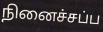
நினைச்சப்ப